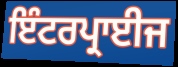
ਇੰਟਰਪ੍ਰਾਈਜ